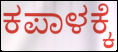
ಕಪಾಳಕ್ಕೆ